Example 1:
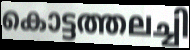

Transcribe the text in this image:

കൊട്ടത്തലച്ചി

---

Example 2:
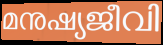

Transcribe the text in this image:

മനുഷ്യജീവി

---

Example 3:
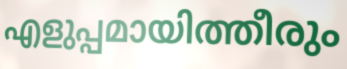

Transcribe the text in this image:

എളുപ്പമായിത്തീരും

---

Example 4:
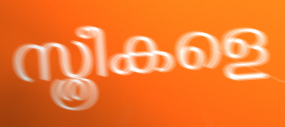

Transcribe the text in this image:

സ്ത്രീകളെ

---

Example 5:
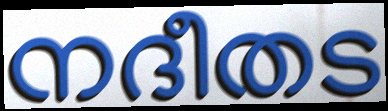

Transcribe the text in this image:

നദീതട